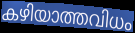
കഴിയാത്തവിധം